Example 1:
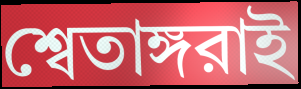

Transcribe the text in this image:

শ্বেতাঙ্গরাই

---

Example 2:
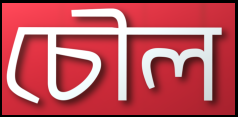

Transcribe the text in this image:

চৌল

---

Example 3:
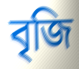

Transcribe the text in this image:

বৃজি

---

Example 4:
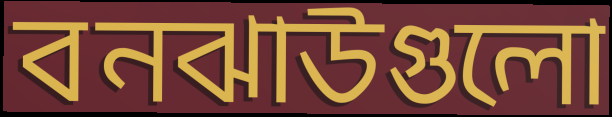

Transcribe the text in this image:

বনঝাউগুলো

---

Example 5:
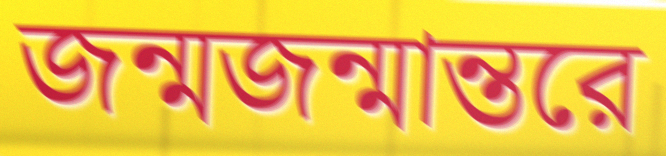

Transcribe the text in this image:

জন্মজন্মান্তরে